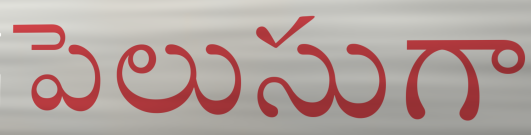
పెలుసుగా